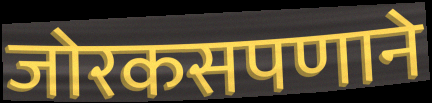
जोरकसपणाने